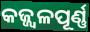
କଜ୍ଜ୍ୱଳପୂର୍ଣ୍ଣ